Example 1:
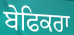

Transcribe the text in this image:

ਬੇਫਿਕਰਾ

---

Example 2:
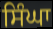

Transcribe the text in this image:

ਸਿੰਘਾ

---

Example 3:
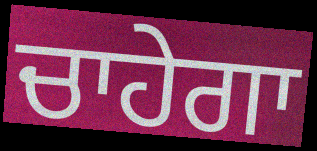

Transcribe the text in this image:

ਚਾਹੇਗਾ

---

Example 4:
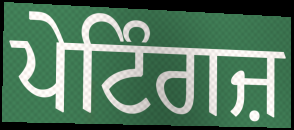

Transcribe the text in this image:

ਪੇਟਿੰਗਜ਼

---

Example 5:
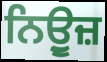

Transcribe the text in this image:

ਨਿਉੂਜ਼